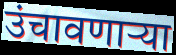
उंचावणाऱ्या